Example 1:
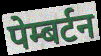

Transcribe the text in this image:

पेम्बर्टन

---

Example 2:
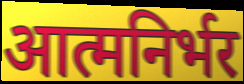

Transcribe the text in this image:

आत्मनिर्भर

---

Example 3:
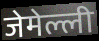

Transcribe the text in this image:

जेमेल्ली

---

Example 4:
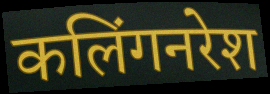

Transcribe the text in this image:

कलिंगनरेश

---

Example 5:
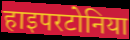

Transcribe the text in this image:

हाइपरटोनिया